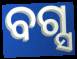
ବଗ୍ସ